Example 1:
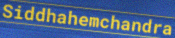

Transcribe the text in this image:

Siddhahemchandra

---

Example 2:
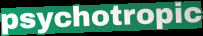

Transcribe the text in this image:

psychotropic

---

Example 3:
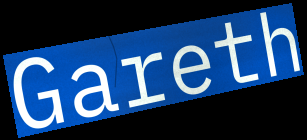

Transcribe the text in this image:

Gareth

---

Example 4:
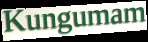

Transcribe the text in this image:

Kungumam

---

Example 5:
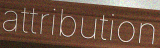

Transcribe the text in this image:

attribution